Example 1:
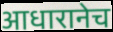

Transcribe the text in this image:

आधारानेच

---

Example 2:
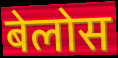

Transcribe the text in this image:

बेलोस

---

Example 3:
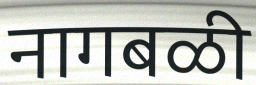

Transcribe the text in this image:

नागबळी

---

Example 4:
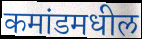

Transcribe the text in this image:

कमांडमधील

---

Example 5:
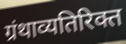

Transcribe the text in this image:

ग्रंथाव्यतिरिक्त